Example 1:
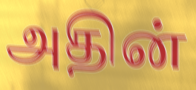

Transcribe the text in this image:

அதின்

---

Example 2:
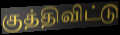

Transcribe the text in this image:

குத்திவிட்டு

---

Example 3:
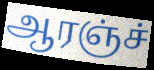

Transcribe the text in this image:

ஆரஞ்ச்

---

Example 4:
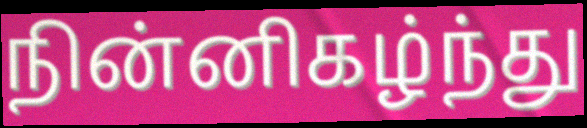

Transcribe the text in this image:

நின்னிகழ்ந்து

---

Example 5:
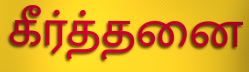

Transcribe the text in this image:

கீர்த்தனை